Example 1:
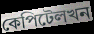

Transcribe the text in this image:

কেপিটেলখন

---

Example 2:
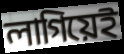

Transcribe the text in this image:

লাগিয়েই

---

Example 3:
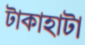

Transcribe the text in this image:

টাকাহাটা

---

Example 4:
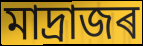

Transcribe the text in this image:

মাদ্ৰাজৰ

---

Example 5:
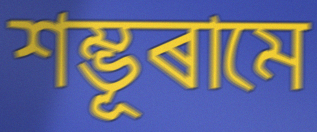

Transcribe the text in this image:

শম্ভূৰামে